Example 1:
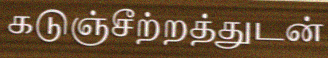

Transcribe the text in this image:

கடுஞ்சீற்றத்துடன்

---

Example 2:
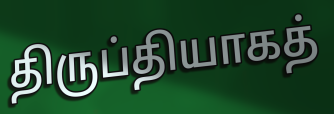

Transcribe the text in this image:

திருப்தியாகத்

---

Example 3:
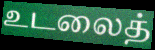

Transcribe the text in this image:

உடலைத்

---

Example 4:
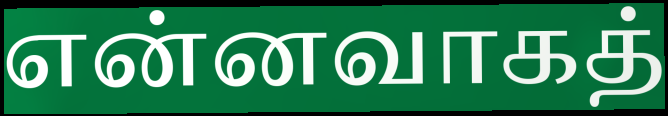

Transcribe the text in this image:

என்னவாகத்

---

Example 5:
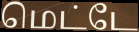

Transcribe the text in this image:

மெட்டே